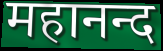
महानन्द